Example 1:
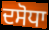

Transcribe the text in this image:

ਦਸੋਧਾ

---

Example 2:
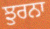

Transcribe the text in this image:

ਝੁਰਨਾ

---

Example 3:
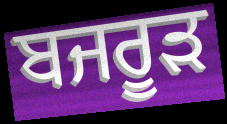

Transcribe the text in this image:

ਬਜਰੂੜ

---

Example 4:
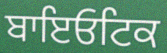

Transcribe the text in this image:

ਬਾਇਓਟਿਕ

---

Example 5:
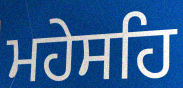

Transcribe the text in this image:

ਮਹੇਸਹਿ